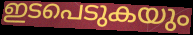
ഇടപെടുകയും